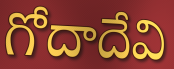
గోదాదేవి